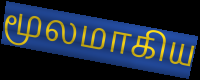
மூலமாகிய